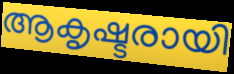
ആകൃഷ്ടരായി